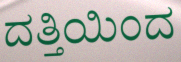
ದತ್ತಿಯಿಂದ